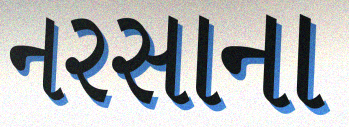
નરસાના